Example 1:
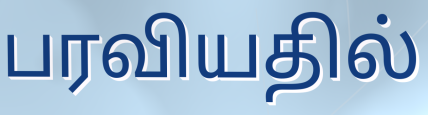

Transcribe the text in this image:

பரவியதில்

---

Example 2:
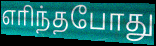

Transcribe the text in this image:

எரிந்தபோது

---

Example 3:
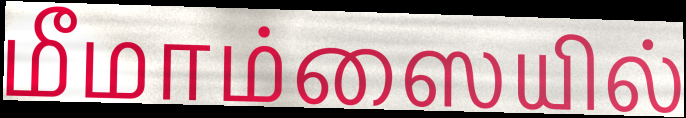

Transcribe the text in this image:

மீமாம்ஸையில்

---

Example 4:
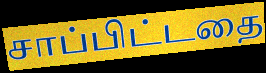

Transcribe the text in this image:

சாப்பிட்டதை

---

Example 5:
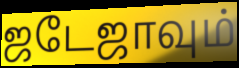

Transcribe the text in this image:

ஜடேஜாவும்